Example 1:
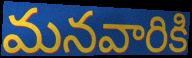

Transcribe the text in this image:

మనవారికి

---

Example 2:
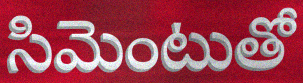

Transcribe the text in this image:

సిమెంటుతో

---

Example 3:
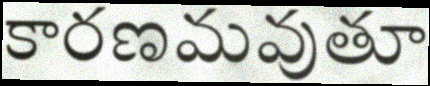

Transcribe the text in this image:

కారణమవుతూ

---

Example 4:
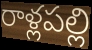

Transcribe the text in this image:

రాళ్లపల్లి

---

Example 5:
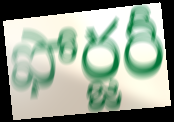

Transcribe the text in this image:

ఫోర్జరీ